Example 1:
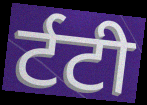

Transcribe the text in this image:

र्टटी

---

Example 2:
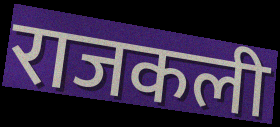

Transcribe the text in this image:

राजकली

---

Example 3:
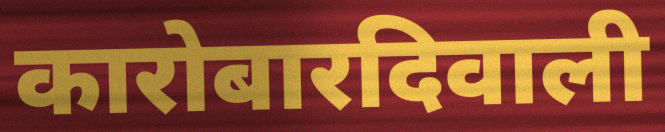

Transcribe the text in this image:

कारोबारदिवाली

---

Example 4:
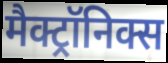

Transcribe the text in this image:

मैक्ट्रॉनिक्स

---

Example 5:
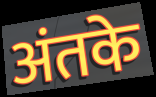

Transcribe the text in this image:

अंतके